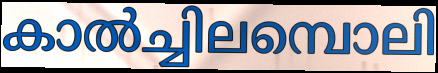
കാൽച്ചിലമ്പൊലി